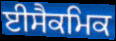
ਈਸੈਕਮਿਕ